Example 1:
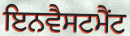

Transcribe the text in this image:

ਇਨਵੈਸਟਮੈਂਟ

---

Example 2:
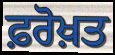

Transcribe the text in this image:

ਫ਼ਰੋਖ਼ਤ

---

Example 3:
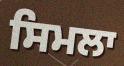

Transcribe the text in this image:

ਸਿਮਲਾ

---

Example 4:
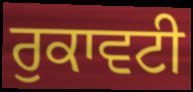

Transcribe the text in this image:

ਰੁਕਾਵਟੀ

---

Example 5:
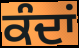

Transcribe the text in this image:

ਕੰਦਾਂ